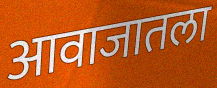
आवाजातला